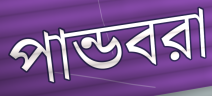
পান্ডবরা